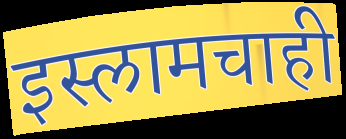
इस्लामचाही